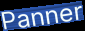
Panner